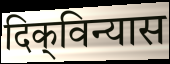
दिक्‌विन्यास